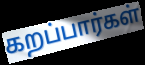
கறப்பார்கள்